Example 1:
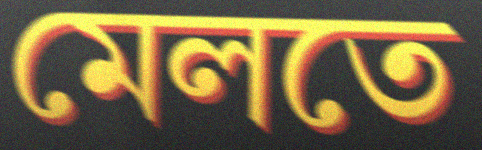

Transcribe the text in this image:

মেলতে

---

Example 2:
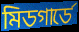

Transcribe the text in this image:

মিডগার্ডে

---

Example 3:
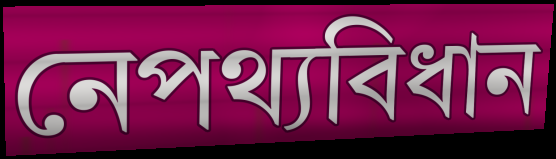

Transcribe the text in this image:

নেপথ্যবিধান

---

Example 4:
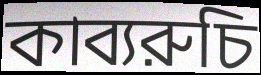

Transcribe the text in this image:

কাব্যরুচি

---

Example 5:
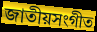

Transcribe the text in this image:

জাতীয়সংগীত